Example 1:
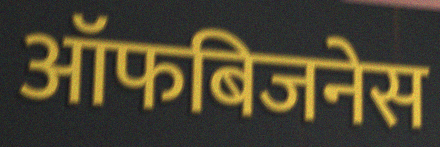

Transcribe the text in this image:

ऑफबिजनेस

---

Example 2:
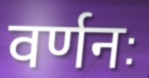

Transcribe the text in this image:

वर्णनः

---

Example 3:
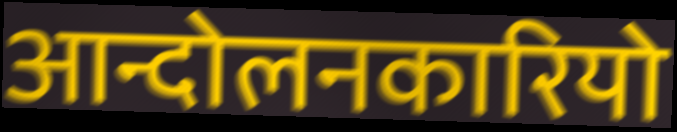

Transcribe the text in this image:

आन्दोलनकारियो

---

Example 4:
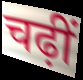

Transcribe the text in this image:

चढ़ीं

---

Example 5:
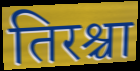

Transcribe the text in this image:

तिरश्चा